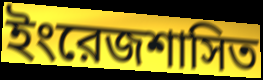
ইংরেজশাসিত